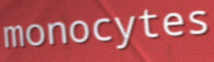
monocytes